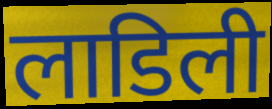
लाडिली